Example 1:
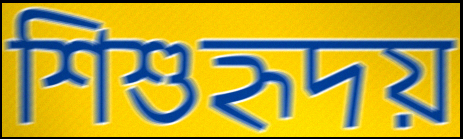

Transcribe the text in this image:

শিশুহৃদয়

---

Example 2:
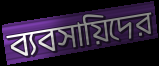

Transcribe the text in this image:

ব্যবসায়িদের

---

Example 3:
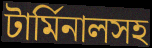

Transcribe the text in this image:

টার্মিনালসহ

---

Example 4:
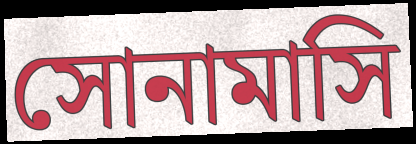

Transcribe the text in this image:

সোনামাসি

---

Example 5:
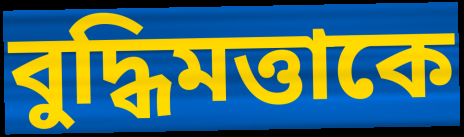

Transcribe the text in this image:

বুদ্ধিমত্তাকে